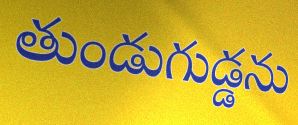
తుండుగుడ్డను